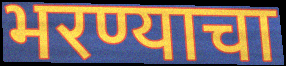
भरण्याचा